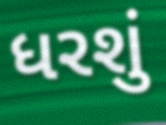
ધરશું